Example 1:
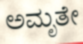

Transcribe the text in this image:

ಅಮೃತೇ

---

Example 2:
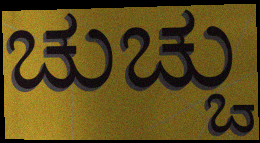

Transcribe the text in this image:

ಚುಚ್ಚು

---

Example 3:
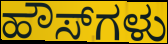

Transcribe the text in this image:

ಹೌಸ್‌ಗಳು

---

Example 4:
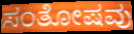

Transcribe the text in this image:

ಸಂತೋಷವು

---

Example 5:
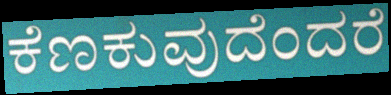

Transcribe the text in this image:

ಕೆಣಕುವುದೆಂದರೆ